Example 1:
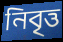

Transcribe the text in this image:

নিবৃত্ত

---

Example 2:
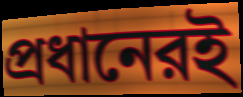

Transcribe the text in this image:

প্রধানেরই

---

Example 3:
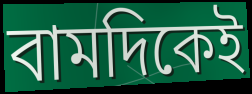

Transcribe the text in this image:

বামদিকেই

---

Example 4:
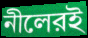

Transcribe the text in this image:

নীলেরই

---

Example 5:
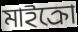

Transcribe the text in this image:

মাইক্রো